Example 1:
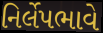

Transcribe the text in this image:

નિર્લેપભાવે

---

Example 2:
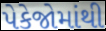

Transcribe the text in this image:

પેકેજોમાંથી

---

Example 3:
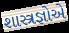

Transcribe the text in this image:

શાસ્ત્રજ્ઞોએ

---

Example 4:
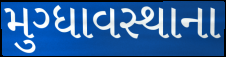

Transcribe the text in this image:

મુગ્ધાવસ્થાના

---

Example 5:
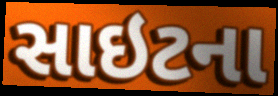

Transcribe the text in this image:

સાઇટના